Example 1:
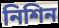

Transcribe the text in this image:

নিশিন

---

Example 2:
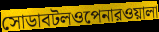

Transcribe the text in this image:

সোডাবটলওপেনারওয়ালা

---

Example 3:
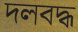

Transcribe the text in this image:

দলবদ্ধ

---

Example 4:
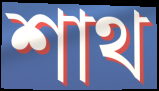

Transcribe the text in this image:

শাথ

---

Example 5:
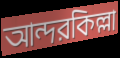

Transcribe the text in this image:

আন্দরকিল্লা